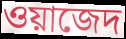
ওয়াজেদ